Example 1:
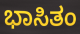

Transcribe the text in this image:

ಭಾಸಿತಂ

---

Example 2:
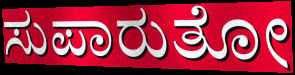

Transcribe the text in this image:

ಸುಪಾರುತೋ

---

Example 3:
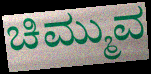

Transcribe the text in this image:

ಚಿಮ್ಮುವ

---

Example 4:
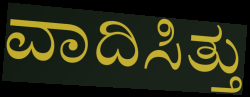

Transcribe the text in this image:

ವಾದಿಸಿತ್ತು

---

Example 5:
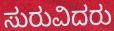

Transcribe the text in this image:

ಸುರುವಿದರು